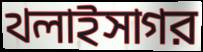
থলাইসাগর